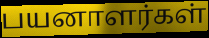
பயனாளர்கள்